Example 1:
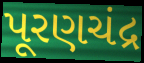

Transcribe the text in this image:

પૂરણચંદ્ર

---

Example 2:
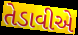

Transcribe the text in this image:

તેડાવીએ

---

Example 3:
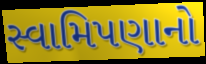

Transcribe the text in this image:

સ્વામિપણાનો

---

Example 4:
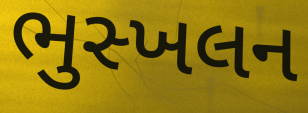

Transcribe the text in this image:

ભુસ્ખલન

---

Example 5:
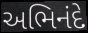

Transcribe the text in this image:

અભિનંદે